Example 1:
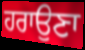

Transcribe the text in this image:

ਹਰਾਉਣਾ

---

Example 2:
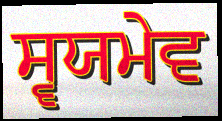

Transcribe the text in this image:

ਸ੍ਵਯਮੇਵ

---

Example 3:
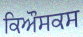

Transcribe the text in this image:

ਕਿਔਸਕਸ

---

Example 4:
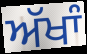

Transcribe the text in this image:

ਅੱਖਾੰ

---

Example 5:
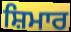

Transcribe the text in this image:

ਸ਼ਿਮਾਰ